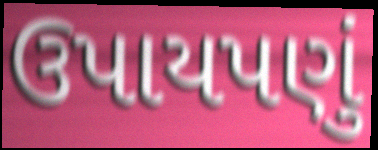
ઉપાયપણું